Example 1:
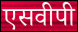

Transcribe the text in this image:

एसवीपी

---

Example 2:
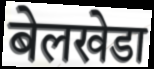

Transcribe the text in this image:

बेलखेडा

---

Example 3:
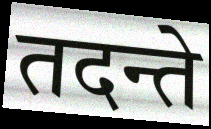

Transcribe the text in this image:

तदन्ते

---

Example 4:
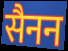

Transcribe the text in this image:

सैनन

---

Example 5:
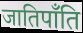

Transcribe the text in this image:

जातिपाँति